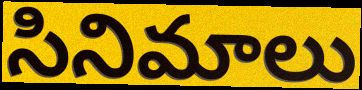
సినిమాలు